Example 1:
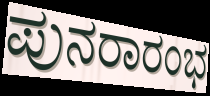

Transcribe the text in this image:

ಪುನರಾರಂಭ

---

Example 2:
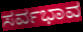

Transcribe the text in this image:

ಸರ್ವಭಾವ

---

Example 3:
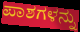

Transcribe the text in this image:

ಪಾಶಗಳನ್ನು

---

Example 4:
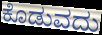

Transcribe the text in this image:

ಕೊಡುವದು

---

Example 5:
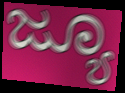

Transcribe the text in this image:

ಜ್ಯೂ